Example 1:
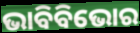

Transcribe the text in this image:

ଭାବିବିଭୋର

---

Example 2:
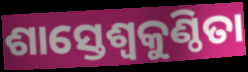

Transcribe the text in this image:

ଶାସ୍ତେଶ୍ବକୁଣ୍ଠିତା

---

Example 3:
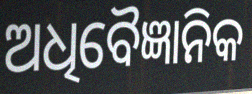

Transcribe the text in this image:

ଅଧିବୈଜ୍ଞାନିକ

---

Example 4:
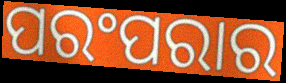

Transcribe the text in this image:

ପରଂପରାର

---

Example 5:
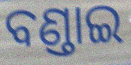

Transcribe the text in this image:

ବଣ୍ଡାଇ